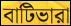
বাটিভারা